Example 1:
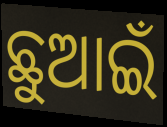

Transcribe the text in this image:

ଛୁଆଇଁ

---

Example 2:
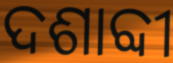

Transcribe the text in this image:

ଦଶାବ୍ଦୀ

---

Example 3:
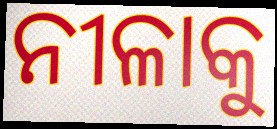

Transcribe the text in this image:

ନୀଳାକୁ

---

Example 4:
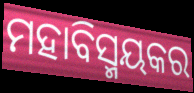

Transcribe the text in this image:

ମହାବିସ୍ମୟକର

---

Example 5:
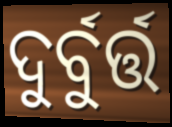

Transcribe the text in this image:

ଦୁର୍ବୁର୍ତ୍ତ